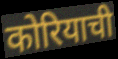
कोरियाची